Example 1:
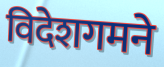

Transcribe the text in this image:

विदेशगमने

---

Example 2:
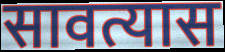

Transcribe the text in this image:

सावत्यास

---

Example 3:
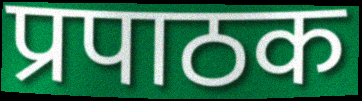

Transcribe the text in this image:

प्रपाठक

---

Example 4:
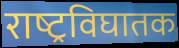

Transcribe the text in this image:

राष्ट्रविघातक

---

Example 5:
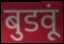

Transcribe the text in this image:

बुडवूं